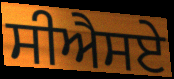
ਸੀਐਸਏ